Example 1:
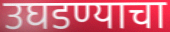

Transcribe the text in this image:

उघडण्याचा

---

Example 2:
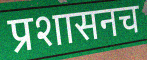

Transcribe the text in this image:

प्रशासनच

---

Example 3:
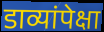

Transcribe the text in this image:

डाव्यांपेक्षा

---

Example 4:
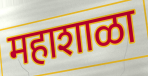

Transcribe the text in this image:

महाशाळा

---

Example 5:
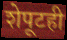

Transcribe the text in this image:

शेपूटही